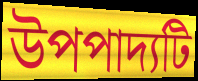
উপপাদ্যটি